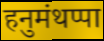
हनुमंथप्पा